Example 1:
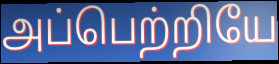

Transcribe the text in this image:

அப்பெற்றியே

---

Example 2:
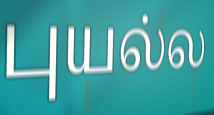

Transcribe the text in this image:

புயல்ல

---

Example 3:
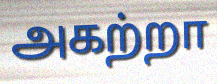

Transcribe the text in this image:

அகற்றா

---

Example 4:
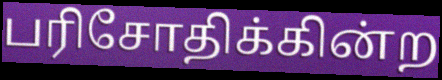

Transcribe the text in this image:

பரிசோதிக்கின்ற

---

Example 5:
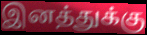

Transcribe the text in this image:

இனத்துக்கு